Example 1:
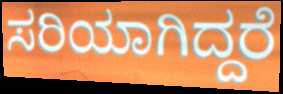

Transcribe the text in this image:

ಸರಿಯಾಗಿದ್ದರೆ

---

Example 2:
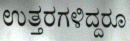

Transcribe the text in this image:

ಉತ್ತರಗಳಿದ್ದರೂ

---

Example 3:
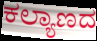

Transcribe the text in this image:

ಕಲ್ಯಾಣದ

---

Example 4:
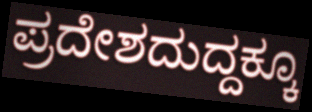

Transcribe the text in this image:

ಪ್ರದೇಶದುದ್ದಕ್ಕೂ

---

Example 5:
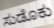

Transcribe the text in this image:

ಸುಡೊಕು